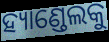
ହ୍ୟାଣ୍ଡେଲକୁ